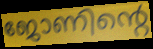
ജോണിന്റെ